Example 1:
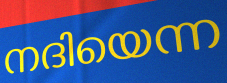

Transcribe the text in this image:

നദിയെന്ന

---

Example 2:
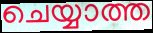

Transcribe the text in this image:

ചെയ്യാത്ത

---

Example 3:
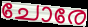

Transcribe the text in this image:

ചോരേ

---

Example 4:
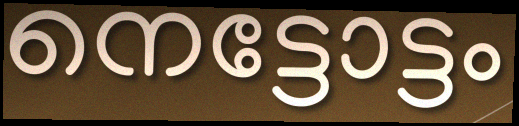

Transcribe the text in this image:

നെട്ടോട്ടം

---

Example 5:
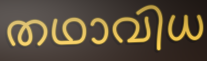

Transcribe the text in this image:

തഥാവിധ